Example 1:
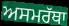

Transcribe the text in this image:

ਅਸਮਰੱਥਾ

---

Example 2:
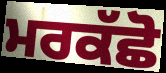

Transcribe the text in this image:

ਮਰਕੱਛੋ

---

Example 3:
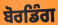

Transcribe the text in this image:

ਬੋਰਡਿੰਗ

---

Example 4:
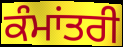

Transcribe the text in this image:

ਕੰਮਾਂਤਰੀ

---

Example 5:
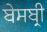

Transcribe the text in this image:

ਬੇਸਬ੍ਰੀ